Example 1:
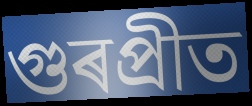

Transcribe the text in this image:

গুৰপ্ৰীত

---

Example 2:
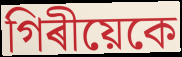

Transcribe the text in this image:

গিৰীয়েকে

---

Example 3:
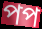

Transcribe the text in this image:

পপ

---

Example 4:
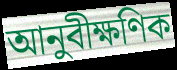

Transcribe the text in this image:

আনুবীক্ষণিক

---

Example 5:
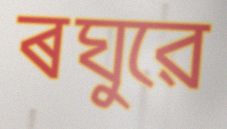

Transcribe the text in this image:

ৰঘুৱে